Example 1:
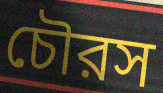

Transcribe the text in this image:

চৌরস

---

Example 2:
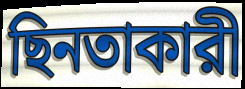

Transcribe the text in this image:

ছিনতাকারী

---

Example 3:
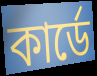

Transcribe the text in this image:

কার্ডে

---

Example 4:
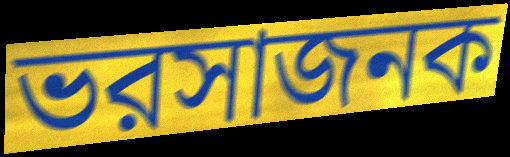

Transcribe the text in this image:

ভরসাজনক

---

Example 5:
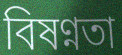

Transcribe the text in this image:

বিষণ্নতা